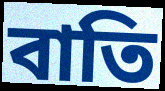
বাতি